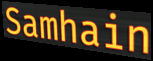
Samhain